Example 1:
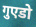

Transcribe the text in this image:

गुएडो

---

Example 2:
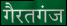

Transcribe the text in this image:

गैरतगंज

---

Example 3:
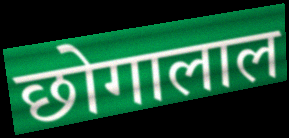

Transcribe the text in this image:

छोगालाल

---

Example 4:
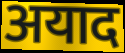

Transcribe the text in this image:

अयाद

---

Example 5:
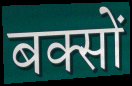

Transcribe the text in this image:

बक्सों